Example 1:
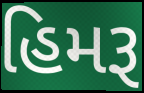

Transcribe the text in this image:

હિમરૂ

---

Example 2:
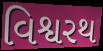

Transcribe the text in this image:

વિશ્વરથ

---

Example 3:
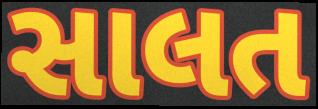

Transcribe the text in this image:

સાલત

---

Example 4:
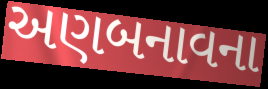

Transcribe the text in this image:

અણબનાવના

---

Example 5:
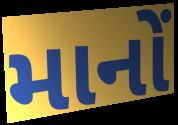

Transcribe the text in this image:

માનોં